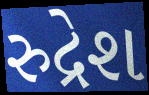
રુદ્રેશ